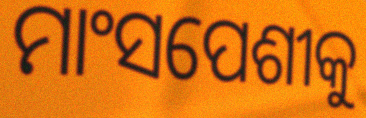
ମାଂସପେଶୀକୁ